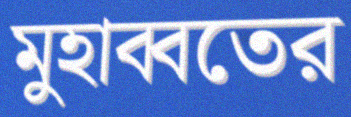
মুহাব্বতের